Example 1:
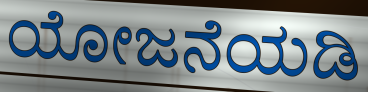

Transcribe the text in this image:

ಯೋಜನೆಯಡಿ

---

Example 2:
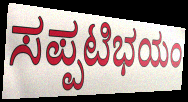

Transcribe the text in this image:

ಸಪ್ಪಟಿಭಯಂ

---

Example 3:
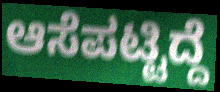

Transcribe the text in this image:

ಆಸೆಪಟ್ಟಿದ್ದೆ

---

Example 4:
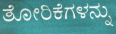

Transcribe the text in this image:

ತೋರಿಕೆಗಳನ್ನು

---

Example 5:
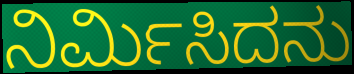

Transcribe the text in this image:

ನಿರ್ಮಿಸಿದನು